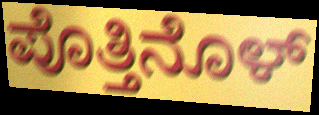
ಪೊತ್ತಿನೊಳ್